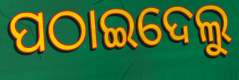
ପଠାଇଦେଲୁ